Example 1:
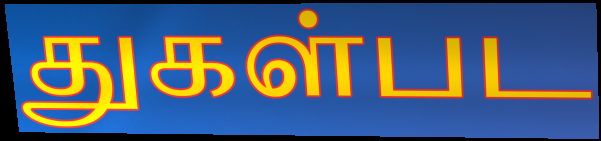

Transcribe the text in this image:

துகள்பட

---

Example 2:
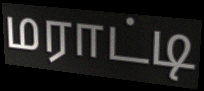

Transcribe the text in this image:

மராட்டி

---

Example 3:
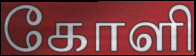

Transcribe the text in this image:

கோளி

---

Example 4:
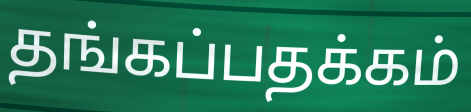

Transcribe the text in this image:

தங்கப்பதக்கம்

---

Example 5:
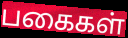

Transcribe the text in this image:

பகைகள்